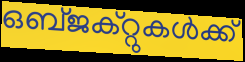
ഒബ്ജക്റ്റുകൾക്ക്